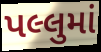
પલ્લુમાં